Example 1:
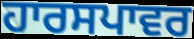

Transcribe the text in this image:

ਹਾਰਸਪਾਵਰ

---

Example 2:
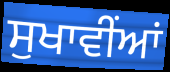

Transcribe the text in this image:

ਸੁਖਾਵੀਂਆਂ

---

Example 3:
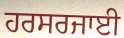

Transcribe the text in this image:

ਹਰਸਰਜਾਈ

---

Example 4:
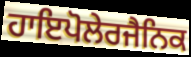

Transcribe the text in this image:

ਹਾਇਪੋਲੇਰਜੈਨਿਕ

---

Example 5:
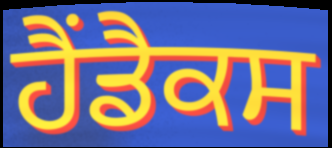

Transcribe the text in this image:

ਹੈਂਡੈਕਸ